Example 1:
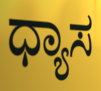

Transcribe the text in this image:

ಧ್ಯಾಸ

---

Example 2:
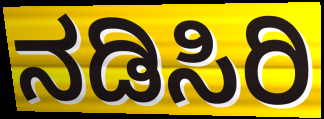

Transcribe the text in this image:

ನಡಿಸಿರಿ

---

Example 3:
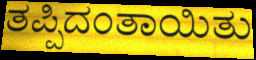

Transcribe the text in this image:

ತಪ್ಪಿದಂತಾಯಿತು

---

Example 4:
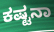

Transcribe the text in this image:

ಕಷ್ಟನಾ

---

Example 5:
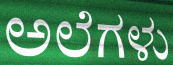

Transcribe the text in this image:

ಅಲೆಗಳು